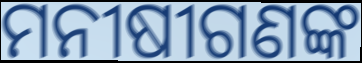
ମନୀଷୀଗଣଙ୍କ